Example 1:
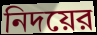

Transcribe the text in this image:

নিদয়ের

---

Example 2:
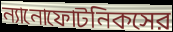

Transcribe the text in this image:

ন্যানোফোটনিকসের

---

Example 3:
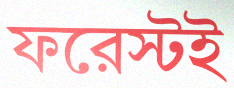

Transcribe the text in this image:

ফরেস্টই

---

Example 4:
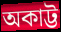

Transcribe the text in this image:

অকাট্ট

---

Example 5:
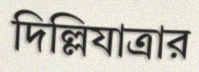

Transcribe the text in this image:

দিল্লিযাত্রার